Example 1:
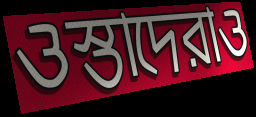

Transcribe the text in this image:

ওস্তাদেরাও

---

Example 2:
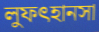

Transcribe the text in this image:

লুফৎহানসা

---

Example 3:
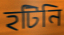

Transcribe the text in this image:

হটিনি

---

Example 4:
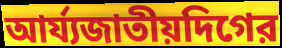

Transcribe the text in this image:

আর্য্যজাতীয়দিগের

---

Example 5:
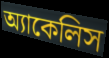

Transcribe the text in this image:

অ্যাকেলিস